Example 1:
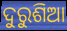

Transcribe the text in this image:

ଦୁରୁଶିଆ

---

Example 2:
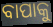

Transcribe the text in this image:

ବାପାକୁ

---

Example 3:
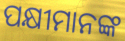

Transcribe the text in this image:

ପକ୍ଷୀମାନଙ୍କ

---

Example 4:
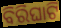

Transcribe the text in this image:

ବିରିଘାଟି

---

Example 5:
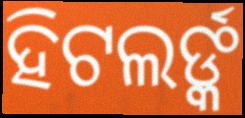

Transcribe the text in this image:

ହିଟଲର୍ଙ୍କ